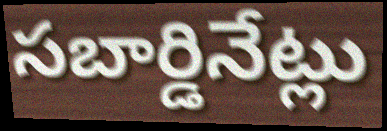
సబార్డినేట్లు